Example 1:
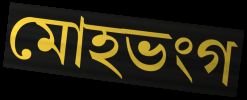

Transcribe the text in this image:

মোহভংগ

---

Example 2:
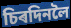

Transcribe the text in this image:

চিৰদিনলৈ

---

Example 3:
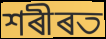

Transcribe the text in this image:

শৰীৰত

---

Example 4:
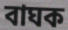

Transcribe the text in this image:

বাঘক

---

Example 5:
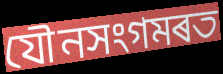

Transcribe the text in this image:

যৌনসংগমৰত